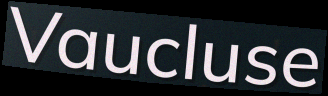
Vaucluse